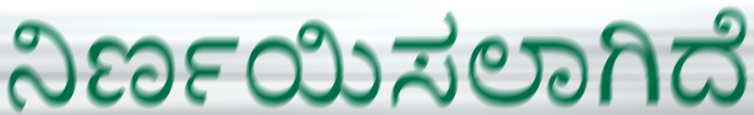
ನಿರ್ಣಯಿಸಲಾಗಿದೆ